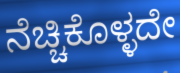
ನೆಚ್ಚಿಕೊಳ್ಳದೇ